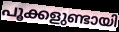
പൂക്കളുണ്ടായി